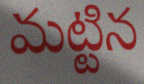
మట్టిన